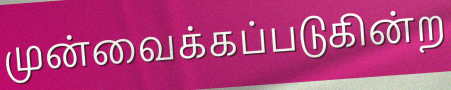
முன்வைக்கப்படுகின்ற